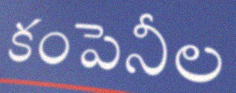
కంపెనీల